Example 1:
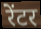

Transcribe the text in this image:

रेंटर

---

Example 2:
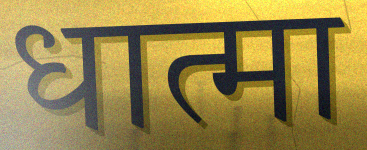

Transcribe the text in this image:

धात्मा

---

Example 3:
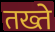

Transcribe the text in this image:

तख्ते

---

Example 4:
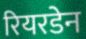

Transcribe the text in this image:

रियरडेन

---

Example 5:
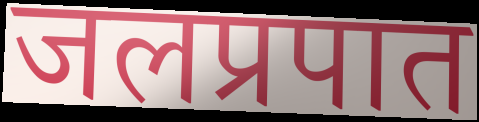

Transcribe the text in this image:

जलप्रपात